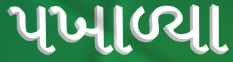
પખાળ્યા